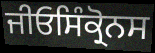
ਜੀਓਸਿੰਕ੍ਰੋਨਸ